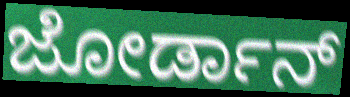
ಜೋರ್ಡಾನ್